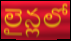
లైన్లలో